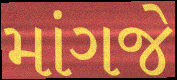
માંગજે